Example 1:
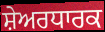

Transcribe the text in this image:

ਸ਼ੇਅਰਧਾਰਕ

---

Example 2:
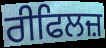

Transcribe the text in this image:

ਰੀਫਿਲਜ਼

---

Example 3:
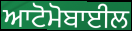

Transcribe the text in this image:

ਆਟੋਮੋਬਾਈਲ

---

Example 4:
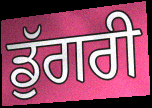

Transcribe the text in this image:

ਡੁੱਗਰੀ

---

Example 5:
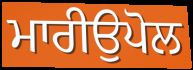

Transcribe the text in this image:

ਮਾਰੀਉਪੋਲ